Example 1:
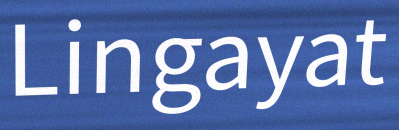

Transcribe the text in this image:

Lingayat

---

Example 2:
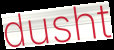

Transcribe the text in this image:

dusht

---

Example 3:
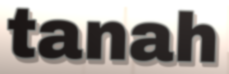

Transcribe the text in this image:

tanah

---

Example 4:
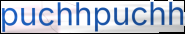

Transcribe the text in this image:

puchhpuchh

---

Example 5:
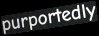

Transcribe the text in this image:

purportedly